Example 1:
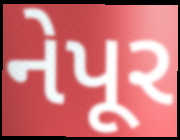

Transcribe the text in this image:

નેપૂર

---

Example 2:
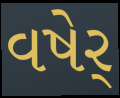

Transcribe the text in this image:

વષેર્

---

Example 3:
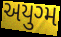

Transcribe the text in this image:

અયુગ્મ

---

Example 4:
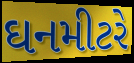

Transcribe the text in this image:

ઘનમીટરે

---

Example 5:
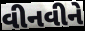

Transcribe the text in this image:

વીનવીને